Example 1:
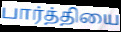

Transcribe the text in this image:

பார்த்தியை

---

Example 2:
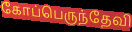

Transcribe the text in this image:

கோப்பெருந்தேவி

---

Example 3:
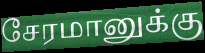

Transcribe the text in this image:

சேரமானுக்கு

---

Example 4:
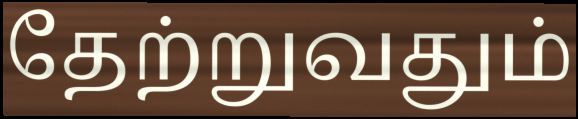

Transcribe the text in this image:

தேற்றுவதும்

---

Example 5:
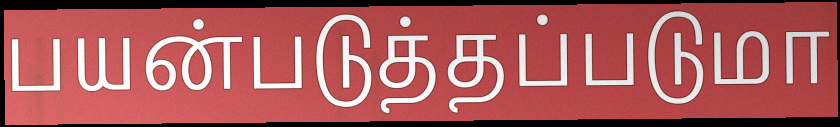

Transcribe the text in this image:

பயன்படுத்தப்படுமா